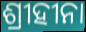
ଶ୍ରୀହୀନା